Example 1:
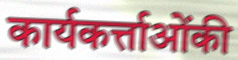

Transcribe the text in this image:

कार्यकर्त्ताओंकी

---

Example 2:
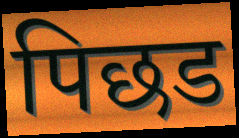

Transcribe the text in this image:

पिछड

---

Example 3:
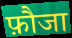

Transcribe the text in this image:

फ़ौजा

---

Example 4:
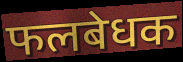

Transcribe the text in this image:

फलबेधक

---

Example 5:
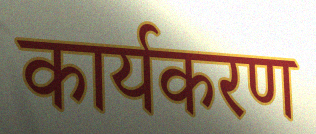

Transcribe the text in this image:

कार्यकरण